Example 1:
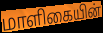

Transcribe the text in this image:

மாளிகையின்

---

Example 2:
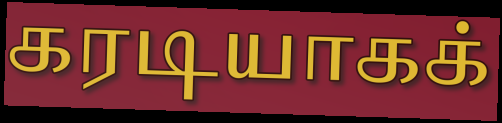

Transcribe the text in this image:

கரடியாகக்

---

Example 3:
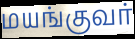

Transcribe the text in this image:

மயங்குவர்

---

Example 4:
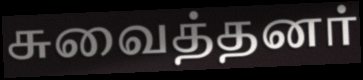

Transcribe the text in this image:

சுவைத்தனர்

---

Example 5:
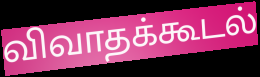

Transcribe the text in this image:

விவாதக்கூடல்